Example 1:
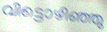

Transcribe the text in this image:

വിട്ടൊഴിഞ്ഞു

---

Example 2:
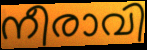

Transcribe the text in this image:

നീരാവി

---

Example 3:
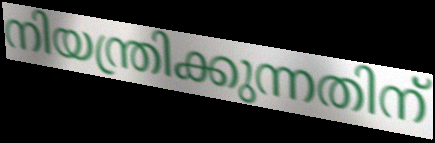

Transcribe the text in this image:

നിയന്ത്രിക്കുന്നതിന്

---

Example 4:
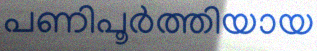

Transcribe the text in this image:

പണിപൂർത്തിയായ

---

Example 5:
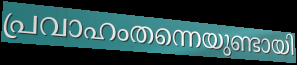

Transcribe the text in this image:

പ്രവാഹംതന്നെയുണ്ടായി